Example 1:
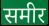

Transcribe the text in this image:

समीर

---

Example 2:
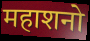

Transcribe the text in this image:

महाशनो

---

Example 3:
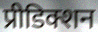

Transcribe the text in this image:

प्रीडिक्शन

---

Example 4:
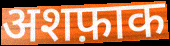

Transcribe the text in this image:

अशफ़ाक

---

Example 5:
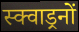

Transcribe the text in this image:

स्क्वाड्रनों